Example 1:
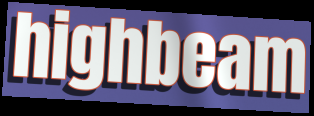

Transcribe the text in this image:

highbeam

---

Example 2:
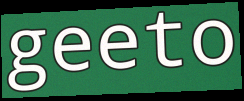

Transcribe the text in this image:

geeto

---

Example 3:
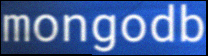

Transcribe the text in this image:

mongodb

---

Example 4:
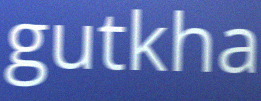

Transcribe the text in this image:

gutkha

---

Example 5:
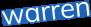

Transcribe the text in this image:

warren